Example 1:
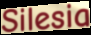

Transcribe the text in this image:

Silesia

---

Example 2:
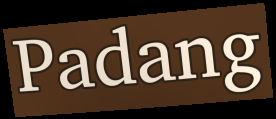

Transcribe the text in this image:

Padang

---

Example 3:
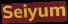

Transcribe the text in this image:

Seiyum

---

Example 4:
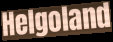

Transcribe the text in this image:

Helgoland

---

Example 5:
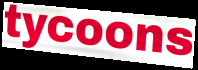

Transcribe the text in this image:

tycoons